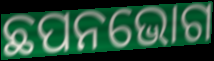
ଛପନଭୋଗ